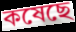
কষেছে